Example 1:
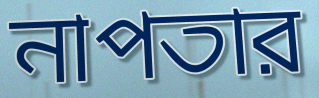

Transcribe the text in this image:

নাপতার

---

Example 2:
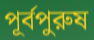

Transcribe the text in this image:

পূর্বপুরুষ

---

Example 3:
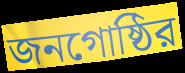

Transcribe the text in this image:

জনগোষ্ঠির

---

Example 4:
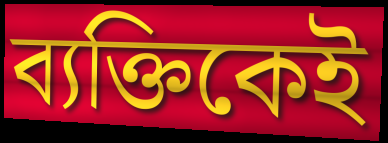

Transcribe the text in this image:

ব্যক্তিকেই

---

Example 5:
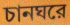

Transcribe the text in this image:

চানঘরে